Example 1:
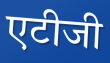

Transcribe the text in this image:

एटीजी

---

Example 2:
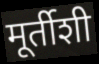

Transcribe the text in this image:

मूर्तीशी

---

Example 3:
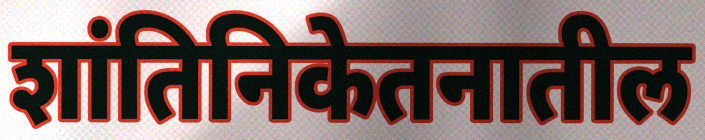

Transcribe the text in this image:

शांतिनिकेतनातील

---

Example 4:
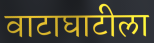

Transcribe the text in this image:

वाटाघाटीला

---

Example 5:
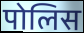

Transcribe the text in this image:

पोलिस